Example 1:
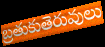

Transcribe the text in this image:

బ్రతుకుతెరువులు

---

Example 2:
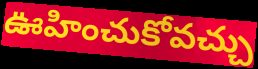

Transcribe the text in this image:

ఊహించుకోవచ్చు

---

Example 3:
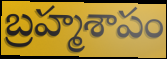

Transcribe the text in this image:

బ్రహ్మశాపం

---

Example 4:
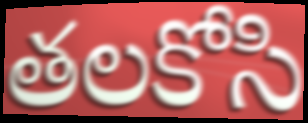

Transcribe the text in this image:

తలకోసి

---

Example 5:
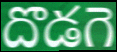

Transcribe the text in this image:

దొడగె